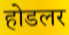
होडलर